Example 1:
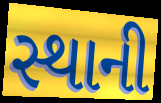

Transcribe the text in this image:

સ્થાની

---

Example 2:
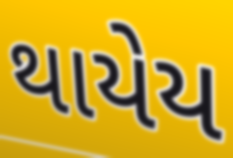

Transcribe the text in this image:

થાયેય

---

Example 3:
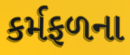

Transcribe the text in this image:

કર્મફળના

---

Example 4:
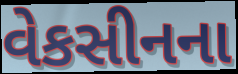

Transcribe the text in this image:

વેકસીનના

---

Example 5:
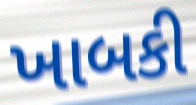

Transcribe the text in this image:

ખાબકી